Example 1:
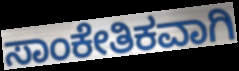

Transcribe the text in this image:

ಸಾಂಕೇತಿಕವಾಗಿ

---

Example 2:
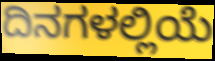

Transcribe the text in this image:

ದಿನಗಳಲ್ಲಿಯೆ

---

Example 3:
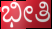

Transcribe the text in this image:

ಭೀತಿ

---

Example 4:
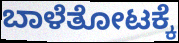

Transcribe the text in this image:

ಬಾಳೆತೋಟಕ್ಕೆ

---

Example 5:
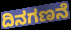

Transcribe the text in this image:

ದಿನಗಣನೆ